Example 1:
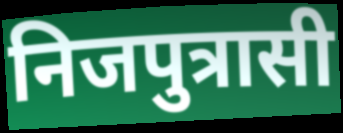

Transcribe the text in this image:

निजपुत्रासी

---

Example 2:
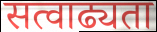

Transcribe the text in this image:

सत्वाढ्यता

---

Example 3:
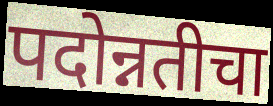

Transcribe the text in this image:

पदोन्नतीचा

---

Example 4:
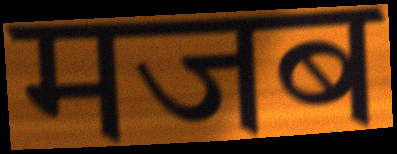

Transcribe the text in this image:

मजब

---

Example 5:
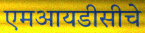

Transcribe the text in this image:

एमआयडीसीचे